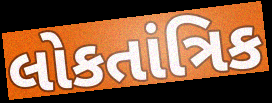
લોકતાંત્રિક